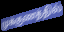
முக்குணத்தில்